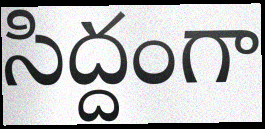
సిద్దంగా